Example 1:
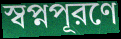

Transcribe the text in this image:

স্বপ্নপূরণে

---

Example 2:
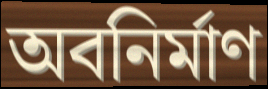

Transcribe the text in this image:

অবনির্মাণ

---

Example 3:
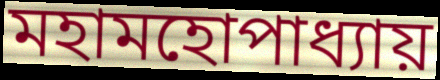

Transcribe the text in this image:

মহামহোপাধ্যায়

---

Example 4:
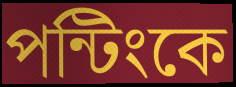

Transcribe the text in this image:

পন্টিংকে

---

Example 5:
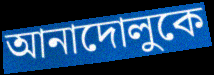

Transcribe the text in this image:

আনাদোলুকে